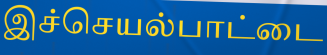
இச்செயல்பாட்டை